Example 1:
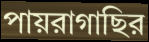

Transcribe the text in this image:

পায়রাগাছির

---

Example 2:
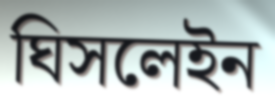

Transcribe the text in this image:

ঘিসলেইন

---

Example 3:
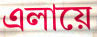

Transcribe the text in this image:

এলায়ে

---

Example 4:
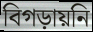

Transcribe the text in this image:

বিগড়ায়নি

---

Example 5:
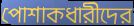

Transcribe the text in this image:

পোশাকধারীদের